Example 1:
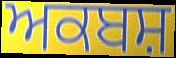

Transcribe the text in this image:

ਅਕਬਸ਼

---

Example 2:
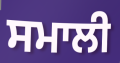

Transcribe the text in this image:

ਸਮਾਲੀ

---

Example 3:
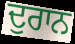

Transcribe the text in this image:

ਦੁਰਾਨ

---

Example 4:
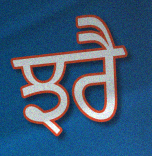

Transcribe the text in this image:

ਝਰੈ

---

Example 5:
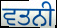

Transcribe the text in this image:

ਵਤਨੀ